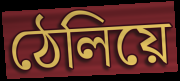
ঠেলিয়ে